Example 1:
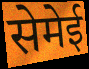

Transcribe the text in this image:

सेमेई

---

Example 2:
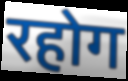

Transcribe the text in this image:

रहोग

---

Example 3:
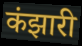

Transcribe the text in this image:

कंझारी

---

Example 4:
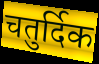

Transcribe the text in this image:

चतुर्दिक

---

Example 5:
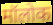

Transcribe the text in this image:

मॉलोक